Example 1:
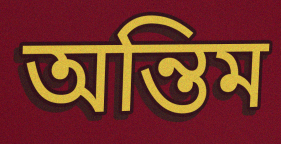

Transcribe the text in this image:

অন্তিম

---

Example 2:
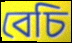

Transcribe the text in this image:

বেচি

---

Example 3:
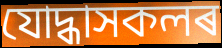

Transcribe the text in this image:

যোদ্ধাসকলৰ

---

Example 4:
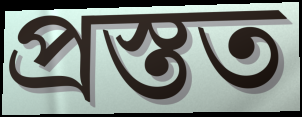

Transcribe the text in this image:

প্ৰস্তত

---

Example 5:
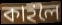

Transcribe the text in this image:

কাইলৈ